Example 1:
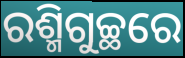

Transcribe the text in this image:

ରଶ୍ମିଗୁଚ୍ଛରେ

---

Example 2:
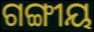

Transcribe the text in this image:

ଗଙ୍ଗୀୟ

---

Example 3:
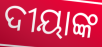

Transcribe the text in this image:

ଦୀୟାଙ୍କ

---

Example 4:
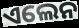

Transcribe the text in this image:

ଏଲେନ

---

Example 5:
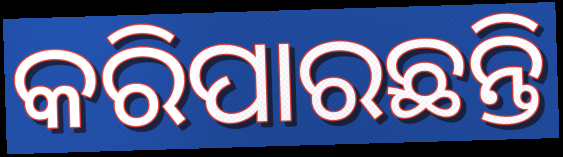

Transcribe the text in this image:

କରିପାରଛନ୍ତି